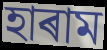
হাৰাম